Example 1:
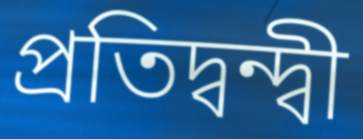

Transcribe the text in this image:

প্রতিদ্বন্দ্বী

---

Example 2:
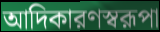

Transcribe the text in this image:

আদিকারণস্বরূপা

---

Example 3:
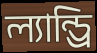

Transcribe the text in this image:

ল্যান্ড্রি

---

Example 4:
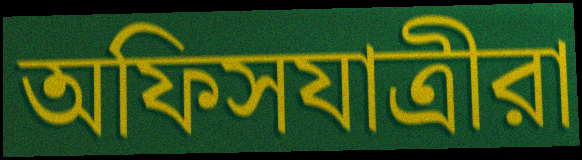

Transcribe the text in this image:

অফিসযাত্রীরা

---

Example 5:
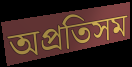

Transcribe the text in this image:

অপ্রতিসম